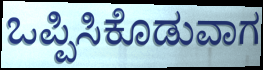
ಒಪ್ಪಿಸಿಕೊಡುವಾಗ